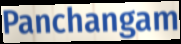
Panchangam